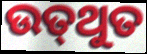
ଉତ୍‌ଥୁତ